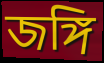
জঙ্গি